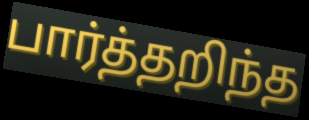
பார்த்தறிந்த